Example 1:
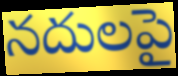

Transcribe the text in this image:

నదులపై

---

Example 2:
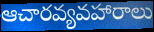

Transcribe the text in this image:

ఆచారవ్యవహారాలు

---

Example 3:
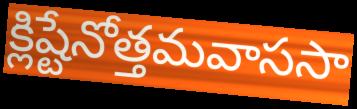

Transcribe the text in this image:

క్లిష్టేనోత్తమవాససా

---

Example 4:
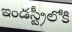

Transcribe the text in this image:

ఇండస్ట్రీలోకి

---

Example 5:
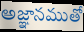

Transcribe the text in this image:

అజ్ఞానముతో